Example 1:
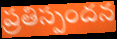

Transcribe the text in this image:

ప్రతిస్పందన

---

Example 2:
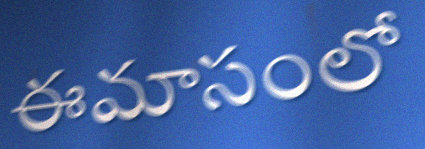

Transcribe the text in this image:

ఈమాసంలో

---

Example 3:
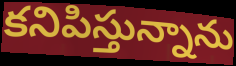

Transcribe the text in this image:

కనిపిస్తున్నాను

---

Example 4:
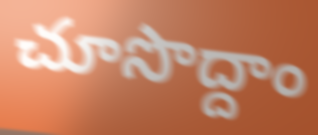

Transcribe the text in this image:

చూసొద్దాం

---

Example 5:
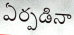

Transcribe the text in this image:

ఏర్పడినా